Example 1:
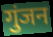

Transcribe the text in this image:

गुंजन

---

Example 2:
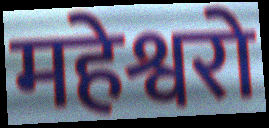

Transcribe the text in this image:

महेश्वरो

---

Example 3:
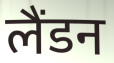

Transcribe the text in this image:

लैंडन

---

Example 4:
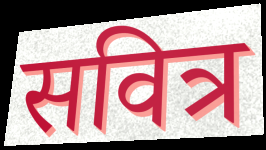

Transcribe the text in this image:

सवित्र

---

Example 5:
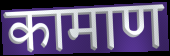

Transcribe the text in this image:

कामाण